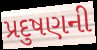
પ્રદુષણની